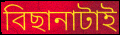
বিছানাটাই